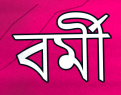
বৰ্মী